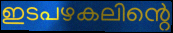
ഇടപഴകലിന്റെ